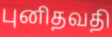
புனிதவதி